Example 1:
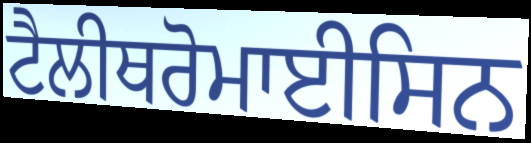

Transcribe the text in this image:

ਟੈਲੀਥਰੋਮਾਈਸਿਨ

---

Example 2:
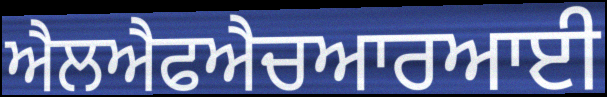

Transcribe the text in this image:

ਐਲਐਫਐਚਆਰਆਈ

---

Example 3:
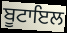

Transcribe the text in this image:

ਬੂਟਾਇਲ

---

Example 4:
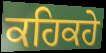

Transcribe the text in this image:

ਕਹਿਕਹੇ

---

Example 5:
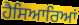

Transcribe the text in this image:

ਹੈਸਿਆਰਿਆਂ